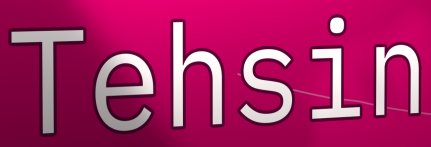
Tehsin